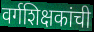
वर्गशिक्षकांची